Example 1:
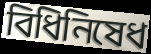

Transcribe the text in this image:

বিধিনিষেধ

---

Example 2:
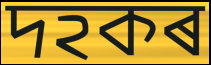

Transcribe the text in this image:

দহকৰ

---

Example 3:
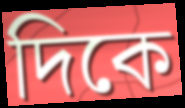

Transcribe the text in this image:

দিকে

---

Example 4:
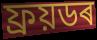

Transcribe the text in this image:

ফ্ৰয়ডৰ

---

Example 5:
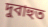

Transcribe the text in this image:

দুবাহুত